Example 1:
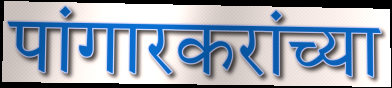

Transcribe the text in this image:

पांगारकरांच्या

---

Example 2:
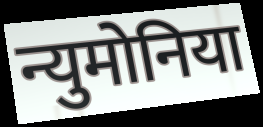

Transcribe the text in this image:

न्युमोनिया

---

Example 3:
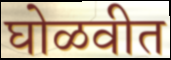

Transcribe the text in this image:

घोळवीत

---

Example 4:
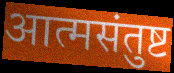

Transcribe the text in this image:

आत्मसंतुष्ट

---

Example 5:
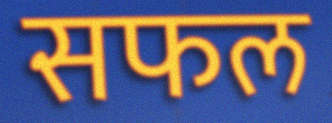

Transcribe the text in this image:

सफल